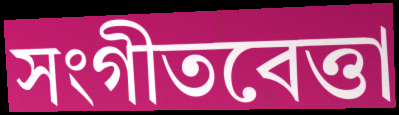
সংগীতবেত্তা